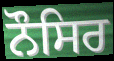
ਨੌਸਿਰ